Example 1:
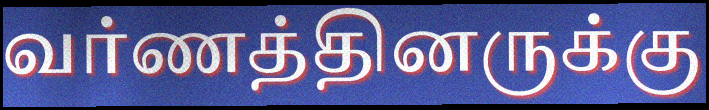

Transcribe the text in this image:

வர்ணத்தினருக்கு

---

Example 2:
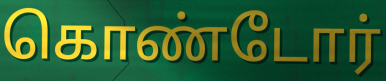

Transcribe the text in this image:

கொண்டோர்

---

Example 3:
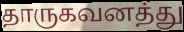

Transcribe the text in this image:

தாருகவனத்து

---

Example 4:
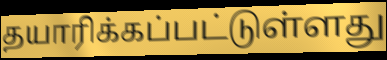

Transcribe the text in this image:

தயாரிக்கப்பட்டுள்ளது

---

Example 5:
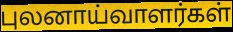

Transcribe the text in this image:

புலனாய்வாளர்கள்